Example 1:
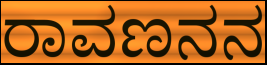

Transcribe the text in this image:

ರಾವಣನನ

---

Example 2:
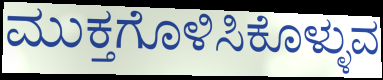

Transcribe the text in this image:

ಮುಕ್ತಗೊಳಿಸಿಕೊಳ್ಳುವ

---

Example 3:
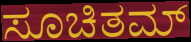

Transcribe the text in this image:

ಸೂಚಿತಮ್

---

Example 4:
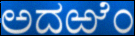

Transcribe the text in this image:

ಅದಱೆಂ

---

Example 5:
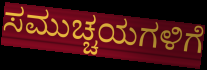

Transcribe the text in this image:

ಸಮುಚ್ಚಯಗಳಿಗೆ